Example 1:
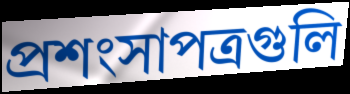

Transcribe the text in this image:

প্রশংসাপত্রগুলি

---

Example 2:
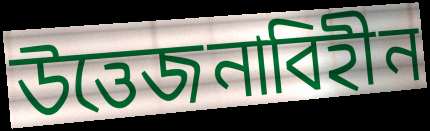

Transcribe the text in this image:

উত্তেজনাবিহীন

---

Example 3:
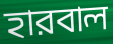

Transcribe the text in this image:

হারবাল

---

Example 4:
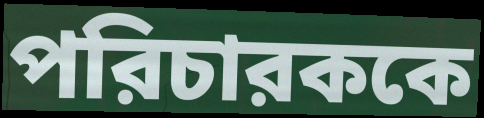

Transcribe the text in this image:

পরিচারককে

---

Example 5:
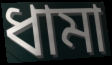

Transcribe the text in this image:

ধামা